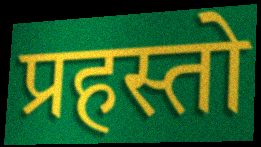
प्रहस्तो